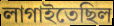
লাগাইতেছিল